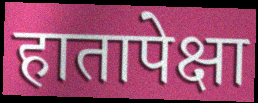
हातापेक्षा